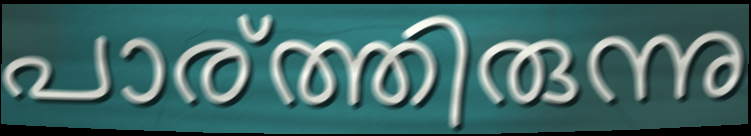
പാര്ത്തിരുന്നു